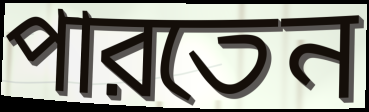
পারতেন